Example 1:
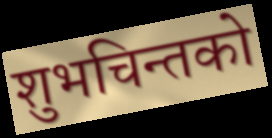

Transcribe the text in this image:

शुभचिन्तको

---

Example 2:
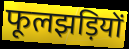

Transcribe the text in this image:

फूलझड़ियों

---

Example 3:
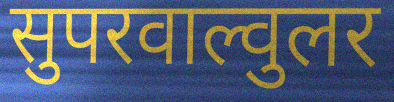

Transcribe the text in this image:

सुपरवाल्वुलर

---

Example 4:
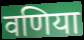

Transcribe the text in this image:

वणिया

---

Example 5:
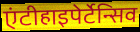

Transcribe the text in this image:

एंटीहाइपेर्टेन्सिव